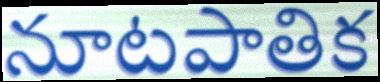
నూటపాతిక